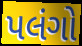
પલંગો